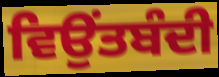
ਵਿਉਂਤਬੰਦੀ